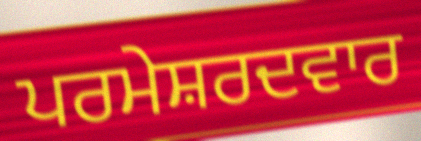
ਪਰਮੇਸ਼ਰਦਵਾਰ